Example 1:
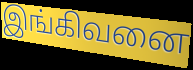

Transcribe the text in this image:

இங்கிவனை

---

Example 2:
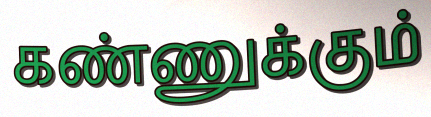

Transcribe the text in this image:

கண்ணுக்கும்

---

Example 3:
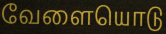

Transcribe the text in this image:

வேளையொடு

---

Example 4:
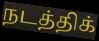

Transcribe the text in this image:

நடத்திக்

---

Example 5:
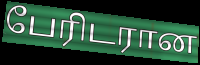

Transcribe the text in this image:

பேரிடரான